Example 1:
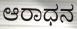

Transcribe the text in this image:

ಆರಾಧನ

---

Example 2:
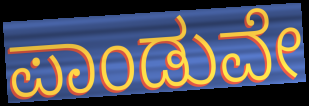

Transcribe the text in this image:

ಪಾಂಡುವೇ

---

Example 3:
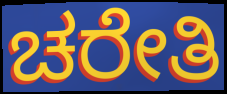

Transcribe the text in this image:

ಚರೇತಿ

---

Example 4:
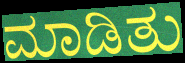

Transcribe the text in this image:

ಮಾಡಿತು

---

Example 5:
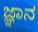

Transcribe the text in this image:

ಜ್ಞಾನ